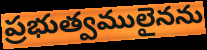
ప్రభుత్వములైనను